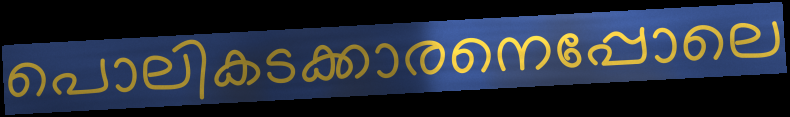
പൊലികടക്കാരനെപ്പോലെ